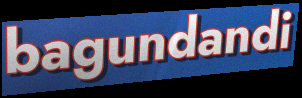
bagundandi